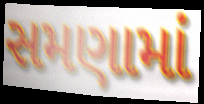
સમણામાં